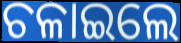
ଚଳାଇଲେ